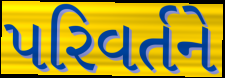
પરિવર્તને